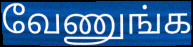
வேணுங்க